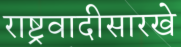
राष्ट्रवादीसारखे